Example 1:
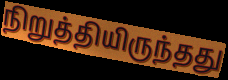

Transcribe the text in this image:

நிறுத்தியிருந்தது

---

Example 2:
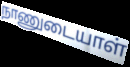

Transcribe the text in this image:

நாணுடையாள்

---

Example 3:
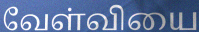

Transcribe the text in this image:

வேள்வியை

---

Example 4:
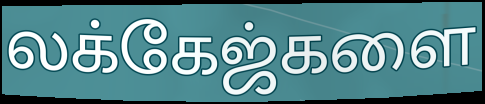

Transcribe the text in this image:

லக்கேஜ்களை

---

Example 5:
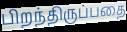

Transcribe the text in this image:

பிறந்திருப்பதை